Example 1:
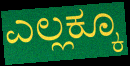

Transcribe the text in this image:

ಎಲ್ಲಕ್ಕೂ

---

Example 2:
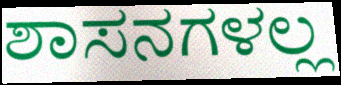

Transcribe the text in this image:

ಶಾಸನಗಳಲ್ಲ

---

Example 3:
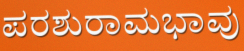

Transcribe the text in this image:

ಪರಶುರಾಮಭಾವು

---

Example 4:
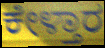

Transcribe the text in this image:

ಕೇಳ್ತಾರ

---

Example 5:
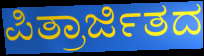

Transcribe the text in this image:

ಪಿತ್ರಾರ್ಜಿತದ